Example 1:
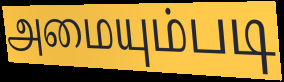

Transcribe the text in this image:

அமையும்படி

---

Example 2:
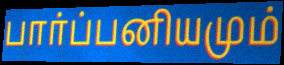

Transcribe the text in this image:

பார்ப்பனியமும்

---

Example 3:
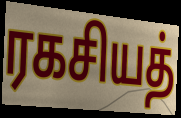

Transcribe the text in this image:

ரகசியத்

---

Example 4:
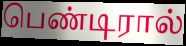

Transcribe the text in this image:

பெண்டிரால்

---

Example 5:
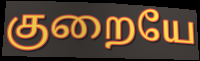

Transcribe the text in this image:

குறையே